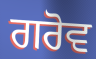
ਗਰੋਵ